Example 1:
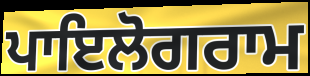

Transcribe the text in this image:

ਪਾਇਲੋਗਰਾਮ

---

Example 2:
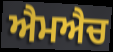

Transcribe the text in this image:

ਐਮਐਚ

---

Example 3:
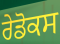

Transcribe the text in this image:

ਰੇਡੋਕਸ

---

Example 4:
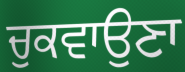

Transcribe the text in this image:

ਚੁਕਵਾਉਣਾ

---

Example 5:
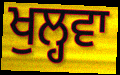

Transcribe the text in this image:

ਖੁਲ੍ਹਵਾ